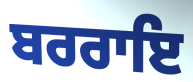
ਬਰਰਾਇ